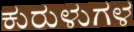
ಕುರುಳುಗಳ